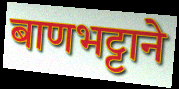
बाणभट्टाने